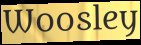
Woosley